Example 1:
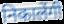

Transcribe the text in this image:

निकालेंगी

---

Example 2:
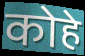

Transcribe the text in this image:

कोहे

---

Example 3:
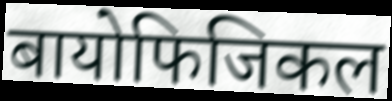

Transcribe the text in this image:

बायोफिजिकल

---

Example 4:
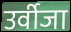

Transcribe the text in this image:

उर्वीजा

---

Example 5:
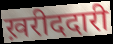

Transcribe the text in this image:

ख़रीददारी